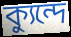
ক্যুন্দে